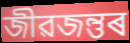
জীৱজন্তুৰ